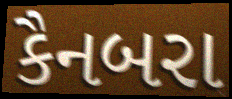
કૈનબરા